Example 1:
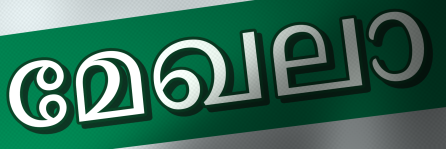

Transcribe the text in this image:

മേഖലാ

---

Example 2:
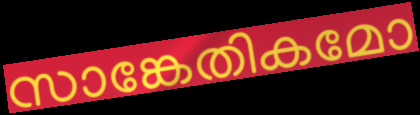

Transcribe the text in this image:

സാങ്കേതികമോ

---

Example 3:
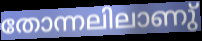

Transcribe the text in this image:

തോന്നലിലാണു്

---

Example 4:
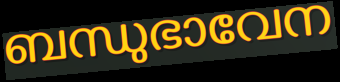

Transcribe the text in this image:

ബന്ധുഭാവേന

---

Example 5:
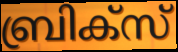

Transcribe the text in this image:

ബ്രിക്സ്